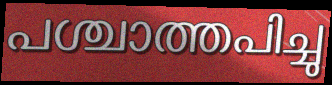
പശ്ചാത്തപിച്ചു